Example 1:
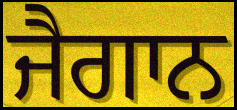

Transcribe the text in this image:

ਜੈਗਾਨ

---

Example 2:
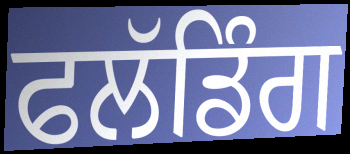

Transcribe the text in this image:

ਫਲੱਡਿੰਗ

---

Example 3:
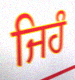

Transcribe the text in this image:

ਜਿਹੰ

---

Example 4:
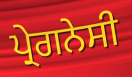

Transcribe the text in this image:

ਪ੍ਰੇਗਨੇਸੀ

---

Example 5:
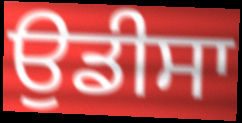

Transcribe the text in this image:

ਉਡੀਸਾ